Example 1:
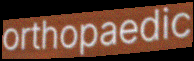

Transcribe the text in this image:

orthopaedic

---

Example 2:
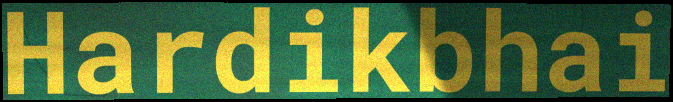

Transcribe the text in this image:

Hardikbhai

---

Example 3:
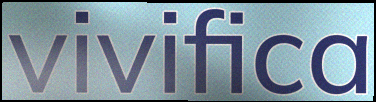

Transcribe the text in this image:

vivifica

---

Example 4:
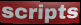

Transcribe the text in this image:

scripts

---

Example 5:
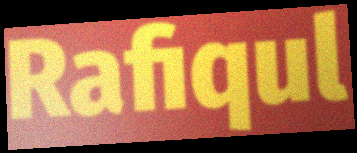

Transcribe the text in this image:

Rafiqul